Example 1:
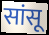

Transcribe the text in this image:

सांसू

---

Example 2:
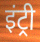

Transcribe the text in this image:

इंट्री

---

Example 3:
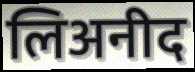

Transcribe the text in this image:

लिअनीद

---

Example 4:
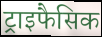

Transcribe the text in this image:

ट्राइफैसिक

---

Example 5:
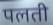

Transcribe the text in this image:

पलती